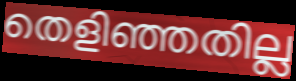
തെളിഞ്ഞതില്ല